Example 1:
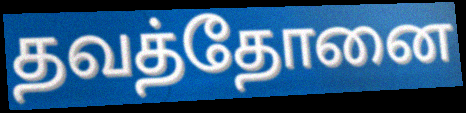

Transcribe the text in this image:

தவத்தோனை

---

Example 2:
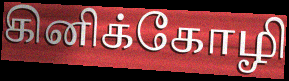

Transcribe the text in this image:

கினிக்கோழி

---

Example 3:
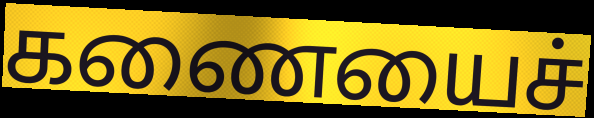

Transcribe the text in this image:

கணையைச்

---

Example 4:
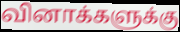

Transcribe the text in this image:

வினாக்களுக்கு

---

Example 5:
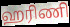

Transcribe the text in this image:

ஹரிணி